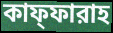
কাফ্ফারাহ